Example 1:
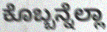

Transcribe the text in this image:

ಕೊಬ್ಬನ್ನೆಲ್ಲಾ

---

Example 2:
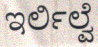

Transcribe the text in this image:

ಇರ್ಲಿಲ್ವೆ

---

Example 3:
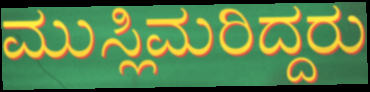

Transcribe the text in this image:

ಮುಸ್ಲಿಮರಿದ್ದರು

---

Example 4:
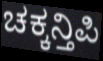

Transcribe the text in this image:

ಚಕ್ಕನ್ತಿಪಿ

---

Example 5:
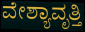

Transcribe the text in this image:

ವೇಶ್ಯಾವೃತ್ತಿ